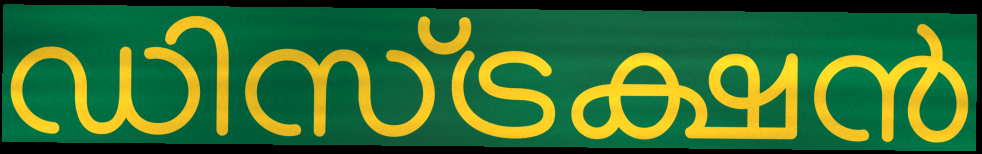
ഡിസ്ട്രക്ഷൻ